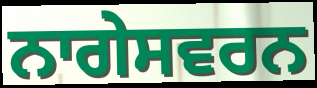
ਨਾਗੇਸਵਰਨ